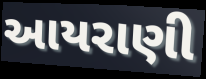
આયરાણી